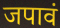
जपावं